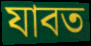
যাবত